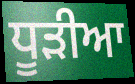
ਧੂੜੀਆ